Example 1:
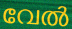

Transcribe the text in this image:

വേൽ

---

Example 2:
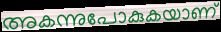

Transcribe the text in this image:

അകന്നുപോകുകയാണ്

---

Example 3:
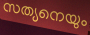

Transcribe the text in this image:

സത്യനെയും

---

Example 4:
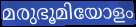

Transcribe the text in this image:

മരുഭൂമിയോളം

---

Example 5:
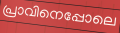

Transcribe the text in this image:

പ്രാവിനെപ്പോലെ